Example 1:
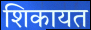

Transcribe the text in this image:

शिकायत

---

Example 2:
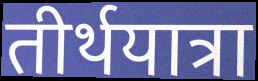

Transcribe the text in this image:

तीर्थयात्रा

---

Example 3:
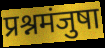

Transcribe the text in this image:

प्रश्नमंजुषा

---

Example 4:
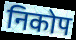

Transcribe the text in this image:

निकोप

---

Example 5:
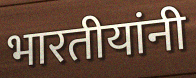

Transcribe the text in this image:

भारतीयांनी